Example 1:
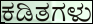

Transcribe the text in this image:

ಕಡಿತಗಳು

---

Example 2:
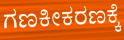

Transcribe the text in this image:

ಗಣಕೀಕರಣಕ್ಕೆ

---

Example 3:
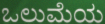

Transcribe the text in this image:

ಒಲುಮೆಯ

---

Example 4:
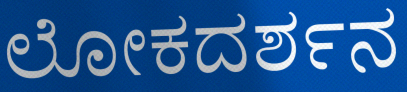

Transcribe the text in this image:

ಲೋಕದರ್ಶನ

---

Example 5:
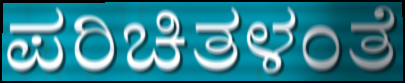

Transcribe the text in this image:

ಪರಿಚಿತಳಂತೆ